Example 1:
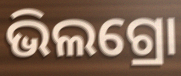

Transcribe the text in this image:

ଭିଲଗ୍ରୋ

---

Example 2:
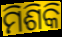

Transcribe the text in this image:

ମିଶିକି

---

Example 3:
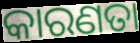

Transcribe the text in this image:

କାରଣତା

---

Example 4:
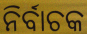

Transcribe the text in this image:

ନିର୍ବାଚକ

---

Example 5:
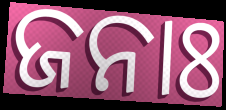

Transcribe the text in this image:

ଜନାଃ